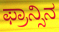
ಫ್ರಾನ್ಸಿನ